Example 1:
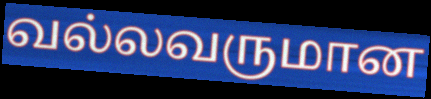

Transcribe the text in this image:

வல்லவருமான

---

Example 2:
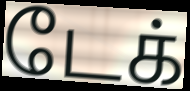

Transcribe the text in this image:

டேக்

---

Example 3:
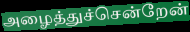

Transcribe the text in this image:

அழைத்துச்சென்றேன்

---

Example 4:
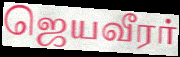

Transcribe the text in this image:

ஜெயவீரர்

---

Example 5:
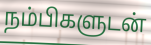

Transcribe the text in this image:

நம்பிகளுடன்